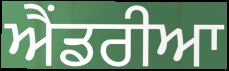
ਐਂਡਰੀਆ